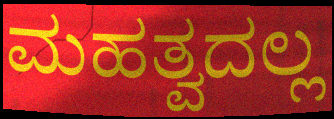
ಮಹತ್ವದಲ್ಲ